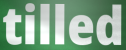
tilled